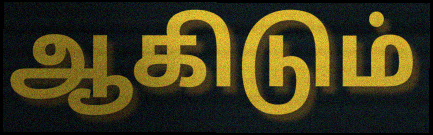
ஆகிடும்